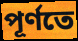
পূর্ণতে